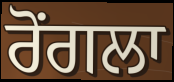
ਰੋਂਗਲਾ